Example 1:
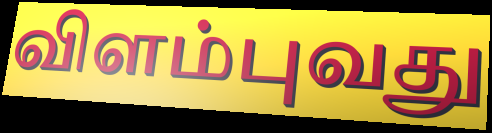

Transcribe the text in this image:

விளம்புவது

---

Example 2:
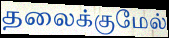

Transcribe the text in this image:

தலைக்குமேல்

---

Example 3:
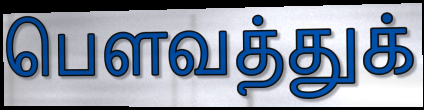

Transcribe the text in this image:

பௌவத்துக்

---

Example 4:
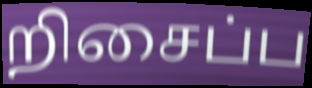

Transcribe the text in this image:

றிசைப்ப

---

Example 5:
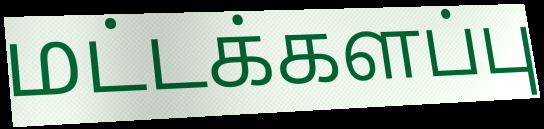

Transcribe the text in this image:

மட்டக்களப்பு